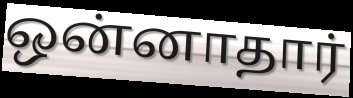
ஒன்னாதார்